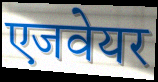
एजवेयर